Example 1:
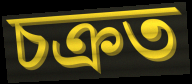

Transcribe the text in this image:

চক্ৰত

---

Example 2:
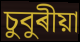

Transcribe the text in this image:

চুবুৰীয়া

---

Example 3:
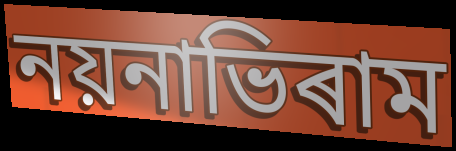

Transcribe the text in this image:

নয়নাভিৰাম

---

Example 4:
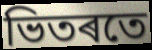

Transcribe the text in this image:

ভিতৰতে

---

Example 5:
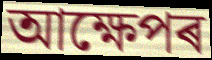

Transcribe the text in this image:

আক্ষেপৰ